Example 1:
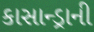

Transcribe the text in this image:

કાસાન્ડ્રાની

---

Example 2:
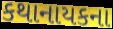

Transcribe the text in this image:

કથાનાયકના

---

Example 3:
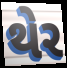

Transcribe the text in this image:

થેર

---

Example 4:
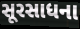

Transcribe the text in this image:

સૂરસાધના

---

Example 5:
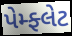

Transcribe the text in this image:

પેમ્ફ્લેટ